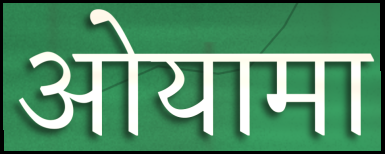
ओयामा